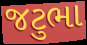
જટુભા